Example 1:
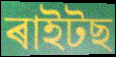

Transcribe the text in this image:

ৰাইটছ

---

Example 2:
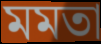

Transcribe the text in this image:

মমতা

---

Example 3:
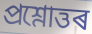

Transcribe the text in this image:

প্ৰশ্নোত্তৰ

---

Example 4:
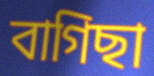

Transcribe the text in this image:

বাগিছা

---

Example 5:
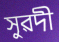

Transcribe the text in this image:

সুৱদী